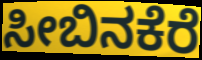
ಸೀಬಿನಕೆರೆ